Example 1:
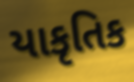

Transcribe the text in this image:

યાકૃતિક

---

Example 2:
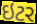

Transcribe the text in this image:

ઇટર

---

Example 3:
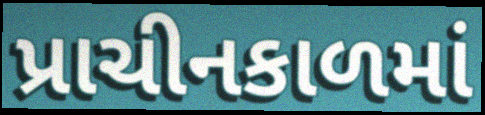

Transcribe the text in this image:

પ્રાચીનકાળમાં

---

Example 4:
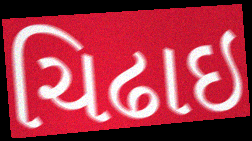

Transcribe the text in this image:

ચિઢાઇ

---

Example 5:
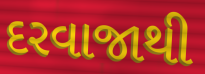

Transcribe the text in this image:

દરવાજાથી